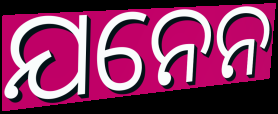
ଯନେନ